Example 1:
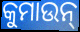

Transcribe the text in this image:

କୁମାଉନ୍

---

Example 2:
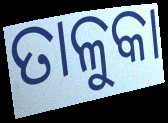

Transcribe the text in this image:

ତାଳୁକା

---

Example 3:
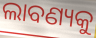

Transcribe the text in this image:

ଲାବଣ୍ୟକୁ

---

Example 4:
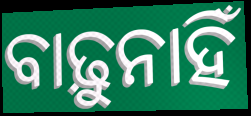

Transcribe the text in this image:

ବାଢ଼ୁନାହିଁ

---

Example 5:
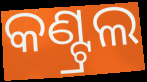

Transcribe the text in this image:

କଣ୍ଟ୍ରଲ